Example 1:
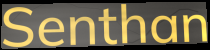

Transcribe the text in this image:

Senthan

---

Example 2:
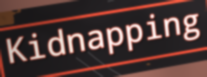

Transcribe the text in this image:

Kidnapping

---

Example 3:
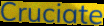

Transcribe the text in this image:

Cruciate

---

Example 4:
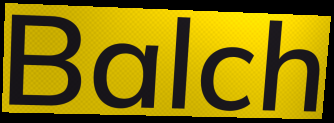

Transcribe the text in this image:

Balch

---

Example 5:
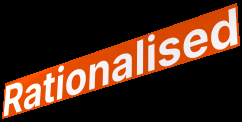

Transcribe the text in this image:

Rationalised